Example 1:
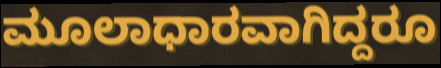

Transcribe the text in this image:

ಮೂಲಾಧಾರವಾಗಿದ್ದರೂ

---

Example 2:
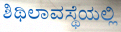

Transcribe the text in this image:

ಶಿಥಿಲಾವಸ್ಥೆಯಲ್ಲಿ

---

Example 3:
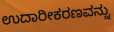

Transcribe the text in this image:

ಉದಾರೀಕರಣವನ್ನು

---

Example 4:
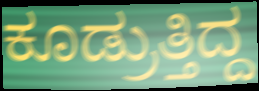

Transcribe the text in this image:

ಕೂಡ್ರುತ್ತಿದ್ದ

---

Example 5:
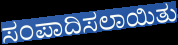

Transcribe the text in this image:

ಸಂಪಾದಿಸಲಾಯಿತು